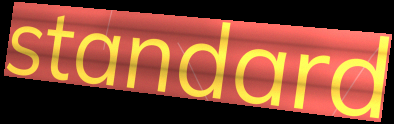
standard